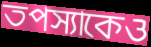
তপস্যাকেও